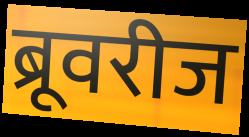
ब्रूवरीज